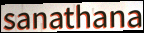
sanathana